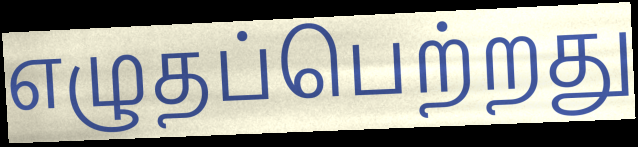
எழுதப்பெற்றது